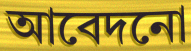
আবেদনো